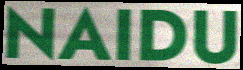
NAIDU